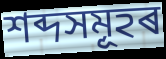
শব্দসমূহৰ